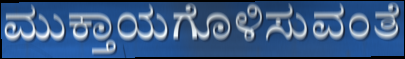
ಮುಕ್ತಾಯಗೊಳಿಸುವಂತೆ